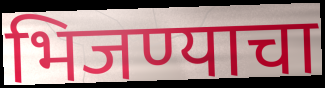
भिजण्याचा